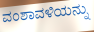
ವಂಶಾವಳಿಯನ್ನು